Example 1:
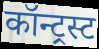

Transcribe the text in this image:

कॉन्ट्रस्ट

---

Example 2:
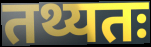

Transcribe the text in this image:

तथ्यतः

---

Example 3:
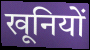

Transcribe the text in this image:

खूनियों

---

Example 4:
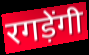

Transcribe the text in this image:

रगड़ेंगी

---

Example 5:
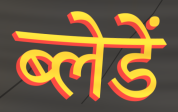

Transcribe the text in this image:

ब्लेडें